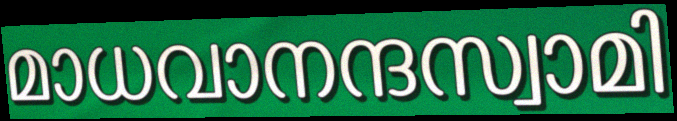
മാധവാനന്ദസ്വാമി